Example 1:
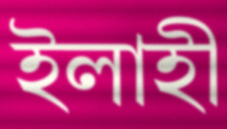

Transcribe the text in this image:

ইলাহী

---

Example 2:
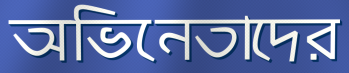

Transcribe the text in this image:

অভিনেতাদের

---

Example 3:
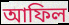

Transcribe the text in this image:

আফিল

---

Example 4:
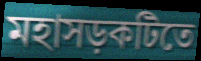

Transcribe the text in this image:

মহাসড়কটিতে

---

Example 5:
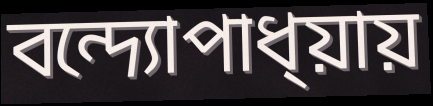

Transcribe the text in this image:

বন্দ্যোপাধ্য়ায়